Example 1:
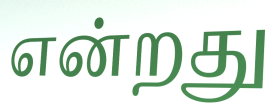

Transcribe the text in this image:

என்றது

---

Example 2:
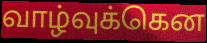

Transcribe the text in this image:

வாழ்வுக்கென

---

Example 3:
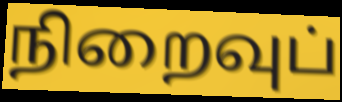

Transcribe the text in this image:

நிறைவுப்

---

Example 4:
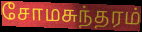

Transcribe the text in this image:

சோமசுந்தரம்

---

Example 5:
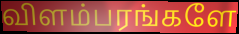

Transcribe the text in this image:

விளம்பரங்களே